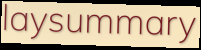
laysummary